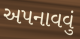
અપનાવવું